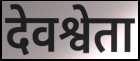
देवश्वेता